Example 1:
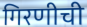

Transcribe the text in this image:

गिरणीची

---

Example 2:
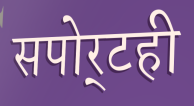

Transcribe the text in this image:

सपोर्टही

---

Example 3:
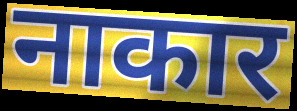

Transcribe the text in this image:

नाकार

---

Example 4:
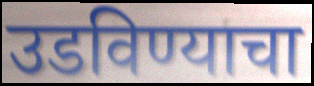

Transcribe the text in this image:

उडविण्याचा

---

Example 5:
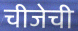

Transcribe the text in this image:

चीजेची